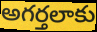
అగర్తలాకు